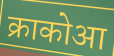
क्राकोआ